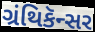
ગ્રંથિકૅન્સર